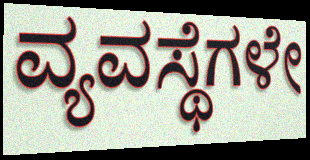
ವ್ಯವಸ್ಥೆಗಳೇ